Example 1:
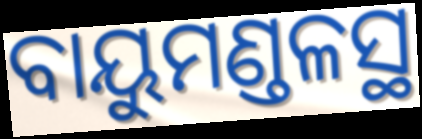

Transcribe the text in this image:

ବାୟୁମଣ୍ଡଳସ୍ଥ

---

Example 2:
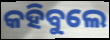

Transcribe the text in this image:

କହିବୁଲେ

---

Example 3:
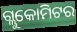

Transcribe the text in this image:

ଗ୍ଲୁକୋମିଟର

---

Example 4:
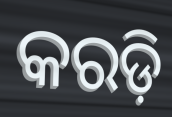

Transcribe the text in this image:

କରଡ଼ି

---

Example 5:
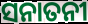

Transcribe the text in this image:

ସନାତନୀ